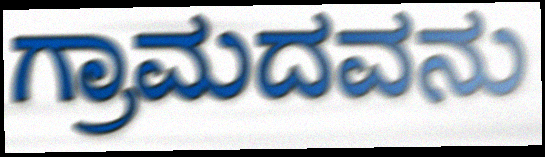
ಗ್ರಾಮದವನು